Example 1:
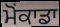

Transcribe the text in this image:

ਮੋਂਕਾਡਾ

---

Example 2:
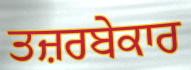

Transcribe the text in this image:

ਤਜ਼ਰਬੇਕਾਰ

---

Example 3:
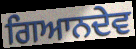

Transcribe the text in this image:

ਗਿਆਨਦੇਵ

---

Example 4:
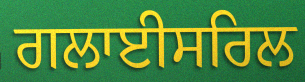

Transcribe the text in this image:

ਗਲਾਈਸਰਿਲ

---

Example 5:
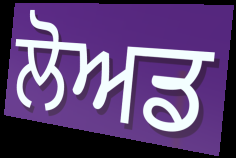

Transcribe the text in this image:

ਲੋਅਡ